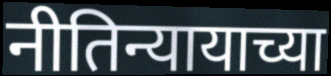
नीतिन्यायाच्या